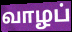
வாழப்